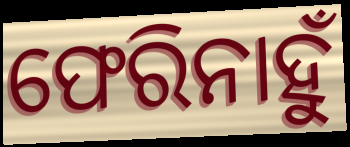
ଫେରିନାହୁଁ